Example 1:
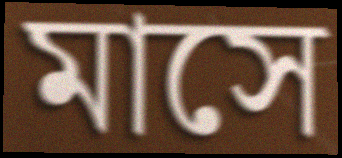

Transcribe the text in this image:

মাসে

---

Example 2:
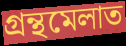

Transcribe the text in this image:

গ্ৰন্থমেলাত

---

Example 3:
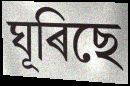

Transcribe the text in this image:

ঘূৰিছে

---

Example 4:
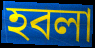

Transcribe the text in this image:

হবলা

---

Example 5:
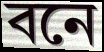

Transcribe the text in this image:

বনে